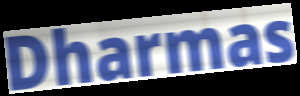
Dharmas